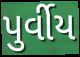
પુર્વીય